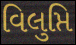
વિલુપ્તિ